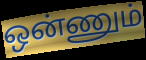
ஒன்ணும்